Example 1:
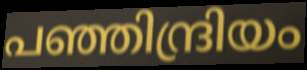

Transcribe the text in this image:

പഞ്ഞിന്ദ്രിയം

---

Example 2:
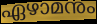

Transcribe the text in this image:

ഏഴാമനും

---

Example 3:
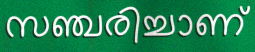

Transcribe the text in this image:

സഞ്ചരിച്ചാണ്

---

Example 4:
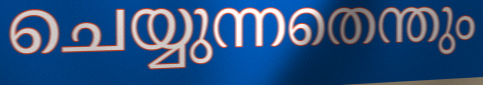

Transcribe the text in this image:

ചെയ്യുന്നതെന്തും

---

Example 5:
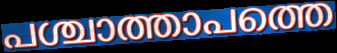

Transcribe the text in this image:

പശ്ചാത്താപത്തെ